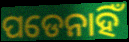
ପଡେନାହିଁ